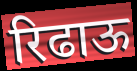
रिढाऊ